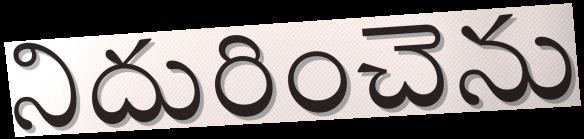
నిదురించెను